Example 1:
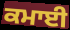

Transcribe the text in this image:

ਕਮਾਈ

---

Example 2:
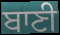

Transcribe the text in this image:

ਬਾਣੀ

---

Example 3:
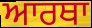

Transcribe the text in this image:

ਆਰਥਾ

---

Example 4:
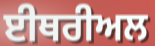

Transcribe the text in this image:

ਈਥਰੀਅਲ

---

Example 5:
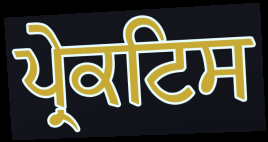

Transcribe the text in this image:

ਪ੍ਰੇਕਟਿਸ